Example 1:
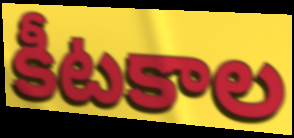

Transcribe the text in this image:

కీటకాల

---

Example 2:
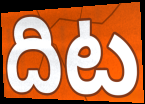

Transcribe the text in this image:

దిట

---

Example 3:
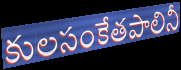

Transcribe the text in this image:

కులసంకేతపాలినీ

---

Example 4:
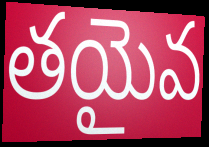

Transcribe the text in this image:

తయైవ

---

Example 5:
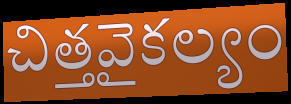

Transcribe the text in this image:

చిత్తవైకల్యం